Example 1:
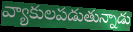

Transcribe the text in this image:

వ్యాకులపడుతున్నాడు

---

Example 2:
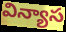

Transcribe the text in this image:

విన్యాస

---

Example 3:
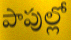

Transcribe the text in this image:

పాపుల్లో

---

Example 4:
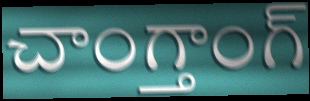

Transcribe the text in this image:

చాంగ్తాంగ్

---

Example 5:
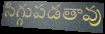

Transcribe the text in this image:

సిగ్గుపడతావు